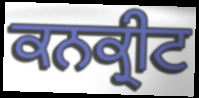
ਕਨਕ੍ਰੀਟ